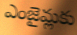
ఎంజైమ్లకు